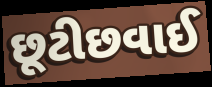
છૂટીછવાઈ